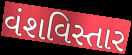
વંશવિસ્તાર